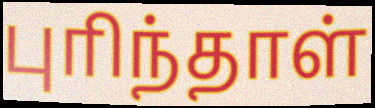
புரிந்தாள்